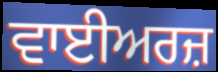
ਵਾਈਅਰਜ਼